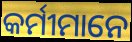
କର୍ମୀମାନେ